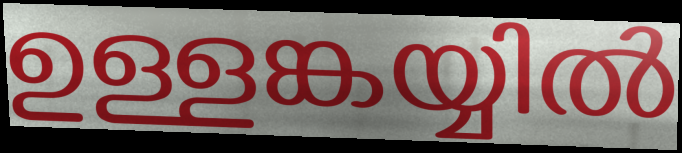
ഉള്ളങ്കയ്യിൽ